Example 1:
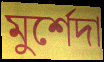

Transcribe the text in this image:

মুর্শেদা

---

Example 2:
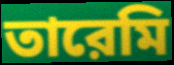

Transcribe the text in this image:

তারেমি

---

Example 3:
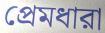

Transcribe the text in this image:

প্রেমধারা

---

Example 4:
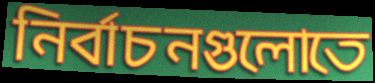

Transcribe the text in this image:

নির্বাচনগুলোতে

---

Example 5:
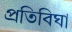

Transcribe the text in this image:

প্রতিবিঘা